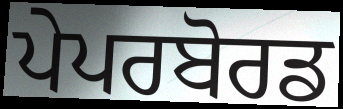
ਪੇਪਰਬੋਰਡ